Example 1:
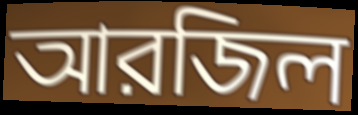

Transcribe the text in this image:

আরজিল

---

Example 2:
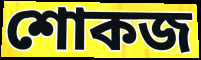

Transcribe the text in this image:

শোকজ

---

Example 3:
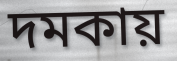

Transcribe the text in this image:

দমকায়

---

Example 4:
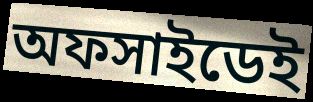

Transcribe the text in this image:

অফসাইডেই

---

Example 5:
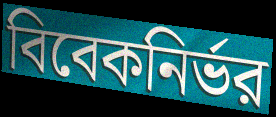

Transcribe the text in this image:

বিবেকনির্ভর